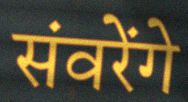
संवरेंगे